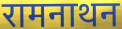
रामनाथन